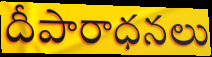
దీపారాధనలు